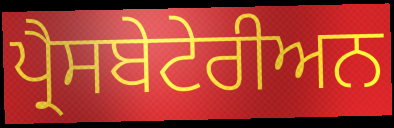
ਪ੍ਰੈਸਬੇਟੇਰੀਅਨ